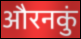
औरनकुं